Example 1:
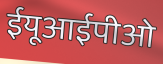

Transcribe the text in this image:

ईयूआईपीओ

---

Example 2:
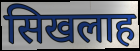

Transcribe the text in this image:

सिखलाह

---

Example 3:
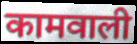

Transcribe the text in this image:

कामवाली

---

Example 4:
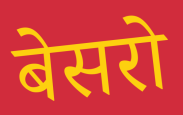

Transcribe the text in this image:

बेसरो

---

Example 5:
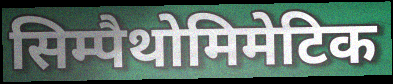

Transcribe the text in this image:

सिम्पैथोमिमेटिक